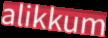
alikkum